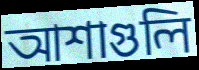
আশাগুলি